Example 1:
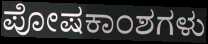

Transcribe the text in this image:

ಪೋಷಕಾಂಶಗಳು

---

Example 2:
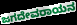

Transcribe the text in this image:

ಜಗದೇವರಾಯನ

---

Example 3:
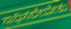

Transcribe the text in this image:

ಸಾಧಿಸಲೇಬೇಕು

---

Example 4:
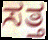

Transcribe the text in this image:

ಸತ್ತ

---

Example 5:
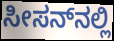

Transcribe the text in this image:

ಸೀಸನ್‌ನಲ್ಲಿ